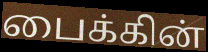
பைக்கின்